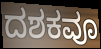
ದಶಕವೂ